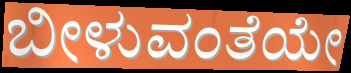
ಬೀಳುವಂತೆಯೇ